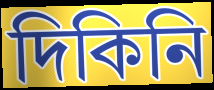
দিকিনি